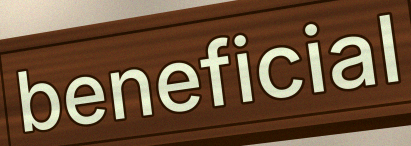
beneficial